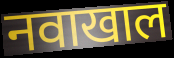
नवाखाल